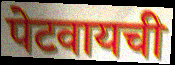
पेटवायची